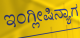
ಇಂಗ್ಲೀಷಿನ್ಯಾಗ